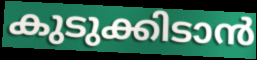
കുടുക്കിടാൻ